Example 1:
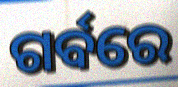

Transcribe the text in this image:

ଗର୍ବରେ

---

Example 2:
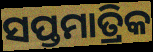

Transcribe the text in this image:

ସପ୍ତମାତ୍ରିକ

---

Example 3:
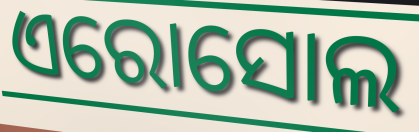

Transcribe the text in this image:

ଏରୋସୋଲ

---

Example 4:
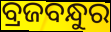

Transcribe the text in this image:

ବ୍ରଜବନ୍ଧୁର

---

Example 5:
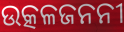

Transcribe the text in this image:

ଉତ୍କଳଜନନୀ